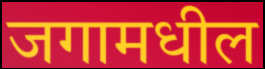
जगामधील